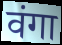
वंगा